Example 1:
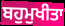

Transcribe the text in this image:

ਬਹੁਮੁਖੀਤਾ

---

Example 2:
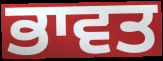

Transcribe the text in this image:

ਭਾਵਤ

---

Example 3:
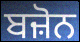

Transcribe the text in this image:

ਬਜ਼ੋਨ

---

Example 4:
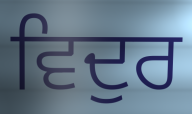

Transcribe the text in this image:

ਵਿਦੁਰ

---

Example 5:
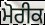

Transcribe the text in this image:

ਮੋਰੀਕ